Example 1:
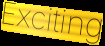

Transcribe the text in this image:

Exciting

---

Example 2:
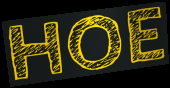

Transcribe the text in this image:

HOE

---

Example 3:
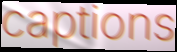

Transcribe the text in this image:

captions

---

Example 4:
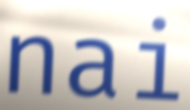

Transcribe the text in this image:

nai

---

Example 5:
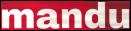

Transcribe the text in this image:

mandu